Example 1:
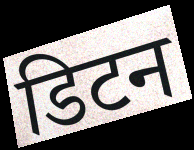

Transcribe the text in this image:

डिटन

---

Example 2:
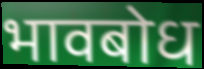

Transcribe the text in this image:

भावबोध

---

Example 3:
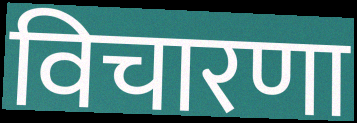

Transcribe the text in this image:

विचारणा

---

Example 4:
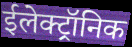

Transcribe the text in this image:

ईलेक्ट्रॉनिक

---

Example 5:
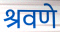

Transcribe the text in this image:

श्रवणे